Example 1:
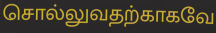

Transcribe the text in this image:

சொல்லுவதற்காகவே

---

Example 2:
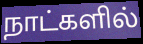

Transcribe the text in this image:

நாட்களில்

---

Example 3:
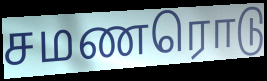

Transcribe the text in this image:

சமணரொடு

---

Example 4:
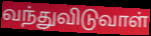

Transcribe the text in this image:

வந்துவிடுவாள்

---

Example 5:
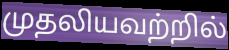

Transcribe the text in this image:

முதலியவற்றில்